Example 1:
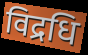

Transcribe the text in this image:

विद्रधि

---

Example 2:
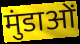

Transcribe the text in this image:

मुंडाओं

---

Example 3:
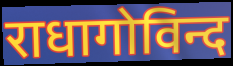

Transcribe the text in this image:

राधागोविन्द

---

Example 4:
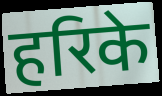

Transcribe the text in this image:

हरिके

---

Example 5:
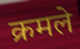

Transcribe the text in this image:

क्रमले